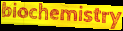
biochemistry